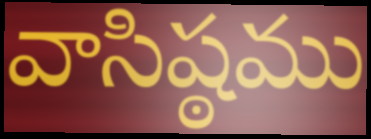
వాసిష్ఠము